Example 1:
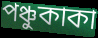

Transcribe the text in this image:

পঞ্চুকাকা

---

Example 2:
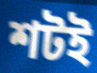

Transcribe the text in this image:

শটই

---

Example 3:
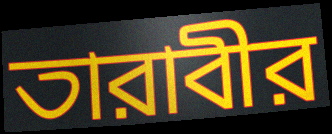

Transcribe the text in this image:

তারাবীর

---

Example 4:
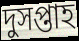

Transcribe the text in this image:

দুসপ্তাহ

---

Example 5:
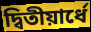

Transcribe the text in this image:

দ্বিতীয়ার্ধে